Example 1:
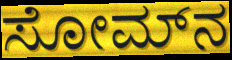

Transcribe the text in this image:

ಸೋಮ್‍ನ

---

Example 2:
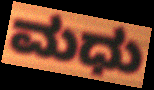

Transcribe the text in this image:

ಮಧು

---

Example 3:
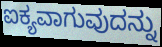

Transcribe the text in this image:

ಐಕ್ಯವಾಗುವುದನ್ನು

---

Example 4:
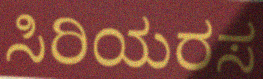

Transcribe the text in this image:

ಸಿರಿಯರಸ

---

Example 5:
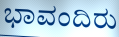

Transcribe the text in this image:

ಭಾವಂದಿರು